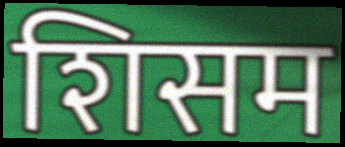
शिसम